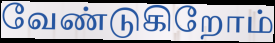
வேண்டுகிறோம்